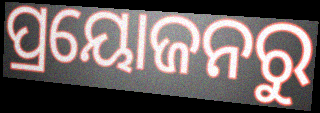
ପ୍ରୟୋଜନରୁ